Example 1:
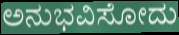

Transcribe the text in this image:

ಅನುಭವಿಸೋದು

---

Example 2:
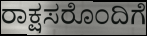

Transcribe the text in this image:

ರಾಕ್ಷಸರೊಂದಿಗೆ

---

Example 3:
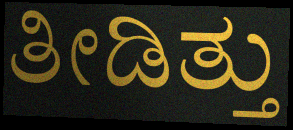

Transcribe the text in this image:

ತೀಡಿತ್ತು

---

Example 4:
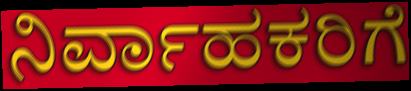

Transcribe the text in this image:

ನಿರ್ವಾಹಕರಿಗೆ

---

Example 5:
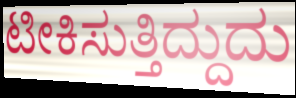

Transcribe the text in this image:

ಟೀಕಿಸುತ್ತಿದ್ದುದು